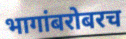
भागांबरोबरच